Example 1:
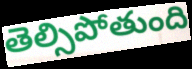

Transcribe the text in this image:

తెల్సిపోతుంది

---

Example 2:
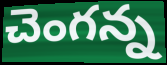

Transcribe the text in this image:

చెంగన్న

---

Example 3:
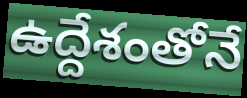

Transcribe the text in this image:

ఉద్దేశంతోనే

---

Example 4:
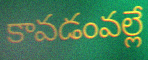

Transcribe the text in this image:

కావడంవల్లే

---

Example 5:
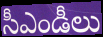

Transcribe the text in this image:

సీఎండీలు